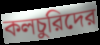
কলচুরিদের